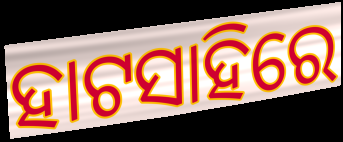
ହାଟସାହିରେ